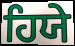
ਹਿਯੇ